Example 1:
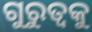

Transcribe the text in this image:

ଗୁରୁତ୍ୱକୁ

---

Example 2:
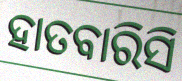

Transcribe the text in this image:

ହାତବାରିସି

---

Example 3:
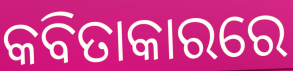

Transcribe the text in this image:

କବିତାକାରରେ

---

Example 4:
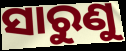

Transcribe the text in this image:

ସାରୁଣୁ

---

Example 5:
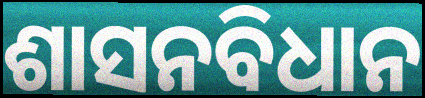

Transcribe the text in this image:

ଶାସନବିଧାନ